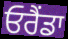
ਓਰੈਂਡਾ